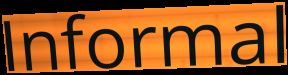
Informal